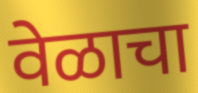
वेळाचा